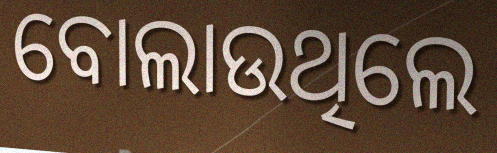
ବୋଲାଉଥିଲେ